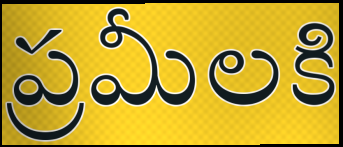
ప్రమీలకి